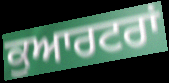
ਕੁਆਰਟਰਾਂ